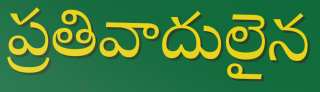
ప్రతివాదులైన